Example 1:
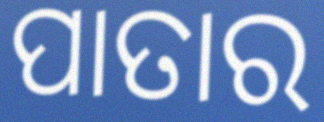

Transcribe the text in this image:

ପାତାର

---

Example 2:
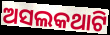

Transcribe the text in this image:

ଅସଲକଥାଟି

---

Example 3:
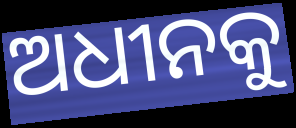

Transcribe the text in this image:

ଅଧୀନକୁ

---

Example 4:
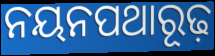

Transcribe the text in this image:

ନୟନପଥାରୂଢ଼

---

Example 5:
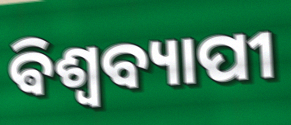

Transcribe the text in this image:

ଵିଶ୍ୱବ୍ୟାପୀ